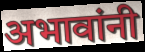
अभावांनी